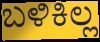
ಬಳಿಕಿಲ್ಲ